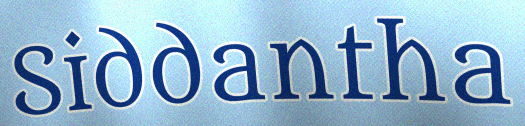
Siddantha